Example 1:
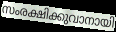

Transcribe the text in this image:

സംരക്ഷിക്കുവാനായി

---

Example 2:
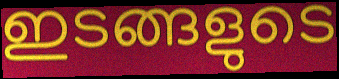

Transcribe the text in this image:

ഇടങ്ങളുടെ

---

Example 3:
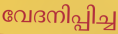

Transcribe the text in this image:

വേദനിപ്പിച്ച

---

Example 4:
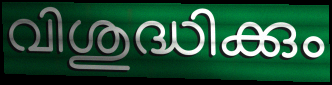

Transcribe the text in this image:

വിശുദ്ധിക്കും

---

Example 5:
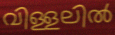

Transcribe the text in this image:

വിള്ളലിൽ